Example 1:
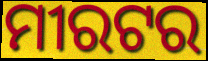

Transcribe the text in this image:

ମୀରଟର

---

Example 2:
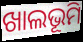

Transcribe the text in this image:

ଖାଲଭୂମି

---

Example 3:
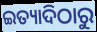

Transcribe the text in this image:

ଇତ୍ୟାଦିଠାରୁ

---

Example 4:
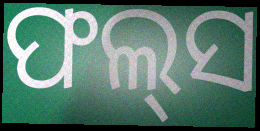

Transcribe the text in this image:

ଫଲ୍‌ସ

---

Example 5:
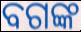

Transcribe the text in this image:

ବଗଙ୍କ